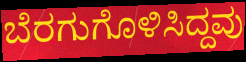
ಬೆರಗುಗೊಳಿಸಿದ್ದವು